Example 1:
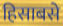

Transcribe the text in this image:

हिसाबसे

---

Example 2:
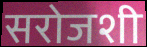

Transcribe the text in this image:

सरोजशी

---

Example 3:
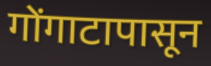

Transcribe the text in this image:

गोंगाटापासून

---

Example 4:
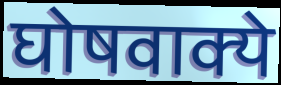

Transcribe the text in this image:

घोषवाक्ये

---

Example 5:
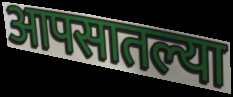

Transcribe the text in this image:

आपसातल्या